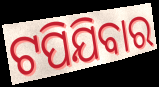
ଟପିଯିବାର